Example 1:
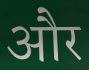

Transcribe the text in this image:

और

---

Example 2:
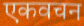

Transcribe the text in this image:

एकवचन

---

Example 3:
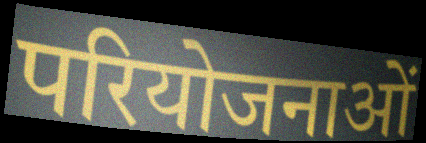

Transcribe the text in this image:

परियोजनाओं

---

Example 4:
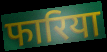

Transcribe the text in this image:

फारिया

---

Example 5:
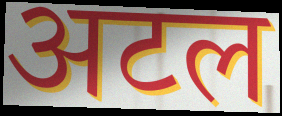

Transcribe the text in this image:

अटल